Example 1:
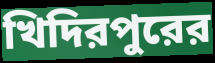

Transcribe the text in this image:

খিদিরপুরের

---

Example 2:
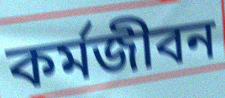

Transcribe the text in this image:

কর্মজীবন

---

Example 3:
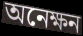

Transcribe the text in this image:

অনেক্ষন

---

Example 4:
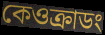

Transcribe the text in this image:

কেওক্রাডং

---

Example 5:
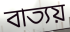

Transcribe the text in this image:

বাত্যয়